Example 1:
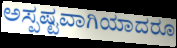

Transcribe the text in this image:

ಅಸ್ಪಷ್ಟವಾಗಿಯಾದರೂ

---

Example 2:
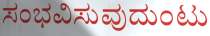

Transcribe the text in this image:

ಸಂಭವಿಸುವುದುಂಟು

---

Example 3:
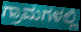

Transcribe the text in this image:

ಗ್ರಾಮಗಳಲ್ಲಿ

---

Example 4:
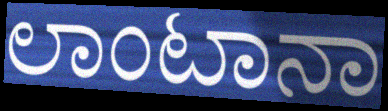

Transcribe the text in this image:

ಲಾಂಟಾನಾ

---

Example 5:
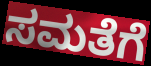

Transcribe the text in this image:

ಸಮತೆಗೆ